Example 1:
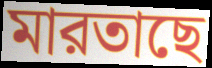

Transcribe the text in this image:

মারতাছে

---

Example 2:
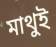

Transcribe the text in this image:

মাথুই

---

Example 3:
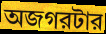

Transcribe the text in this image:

অজগরটার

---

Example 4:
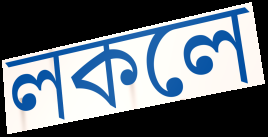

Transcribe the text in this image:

লকলে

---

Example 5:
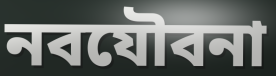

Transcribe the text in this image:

নবযৌবনা